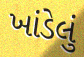
ખાંડેલું